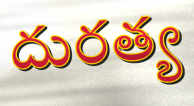
దురత్య